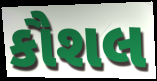
કૌશલ